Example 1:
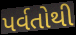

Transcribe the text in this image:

પર્વતોથી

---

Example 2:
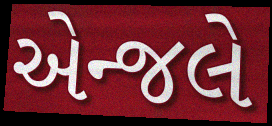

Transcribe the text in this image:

એન્જલે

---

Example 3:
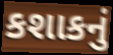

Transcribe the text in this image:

કશાકનું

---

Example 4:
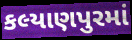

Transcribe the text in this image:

કલ્યાણપુરમાં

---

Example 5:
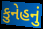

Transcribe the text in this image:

કુનેહનું